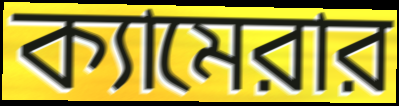
ক্যামেরার